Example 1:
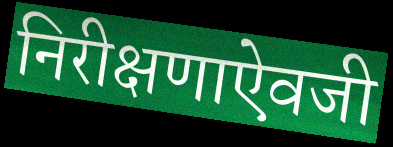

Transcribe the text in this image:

निरीक्षणाऐवजी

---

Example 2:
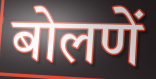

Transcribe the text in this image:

बोलणें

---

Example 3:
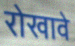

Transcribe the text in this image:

रोखावे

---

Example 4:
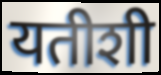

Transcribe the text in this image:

यतीशी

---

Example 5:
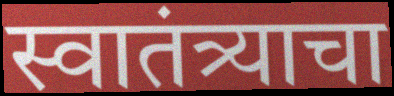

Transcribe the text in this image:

स्‍वातंत्र्याचा